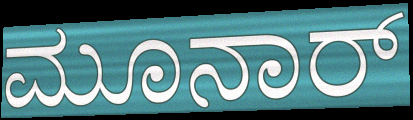
ಮೂನಾರ್